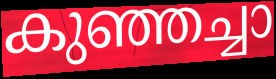
കുഞ്ഞച്ചാ